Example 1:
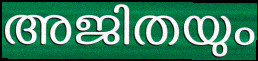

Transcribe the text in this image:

അജിതയും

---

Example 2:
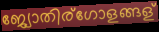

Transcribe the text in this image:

ജ്യോതിര്ഗോളങ്ങള്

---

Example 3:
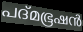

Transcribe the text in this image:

പദ്മഭൂഷൻ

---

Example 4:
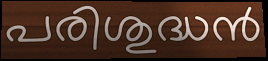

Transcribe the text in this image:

പരിശുദ്ധൻ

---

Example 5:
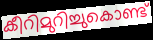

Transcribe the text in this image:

കീറിമുറിച്ചുകൊണ്ട്